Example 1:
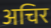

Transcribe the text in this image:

अचिर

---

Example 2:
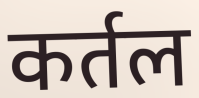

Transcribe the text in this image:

कर्तल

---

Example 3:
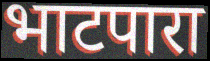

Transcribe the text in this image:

भाटपारा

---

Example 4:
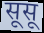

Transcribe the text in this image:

सूसू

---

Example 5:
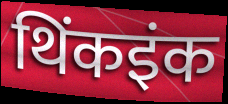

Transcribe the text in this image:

थिंकइंक